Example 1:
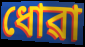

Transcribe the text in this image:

ধোৱা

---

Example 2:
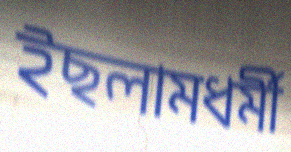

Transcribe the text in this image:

ইছলামধৰ্মী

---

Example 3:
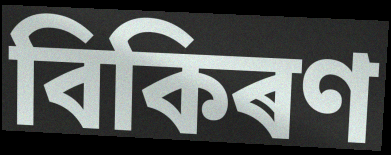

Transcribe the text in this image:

বিকিৰণ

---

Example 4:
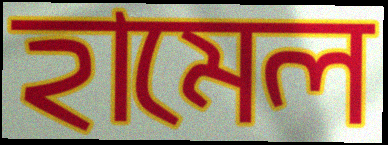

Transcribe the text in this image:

হামেল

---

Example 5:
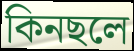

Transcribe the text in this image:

কিনছলে